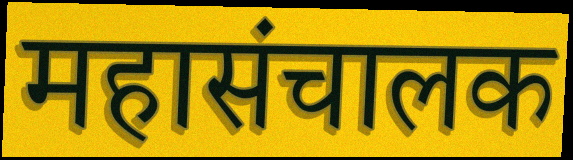
महासंचालक